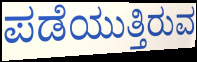
ಪಡೆಯುತ್ತಿರುವ